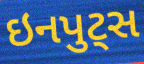
ઇનપુટ્સ